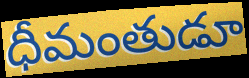
ధీమంతుడూ